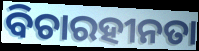
ବିଚାରହୀନତା